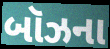
બૉઝના